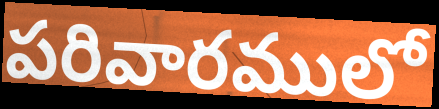
పరివారములో